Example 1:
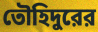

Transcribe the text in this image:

তৌহিদুরের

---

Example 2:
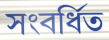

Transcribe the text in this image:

সংবর্ধিত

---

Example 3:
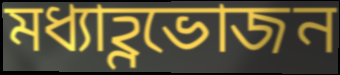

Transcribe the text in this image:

মধ্যাহ্ণভোজন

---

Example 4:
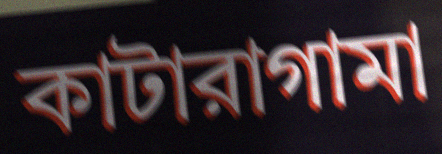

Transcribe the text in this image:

কাটারাগামা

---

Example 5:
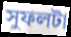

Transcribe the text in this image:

সুফলটা